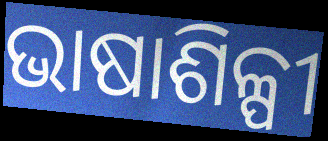
ଭାଷାଶିଳ୍ପୀ